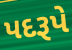
પદરૂપે